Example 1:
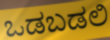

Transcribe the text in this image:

ಒಡಬಡಲಿ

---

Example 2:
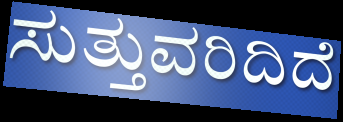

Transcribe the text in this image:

ಸುತ್ತುವರಿದಿದೆ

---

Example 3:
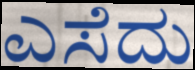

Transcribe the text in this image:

ಎಸೆದು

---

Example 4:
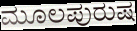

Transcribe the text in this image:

ಮೂಲಪುರುಷ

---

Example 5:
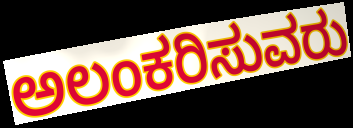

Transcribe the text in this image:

ಅಲಂಕರಿಸುವರು